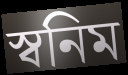
স্বনিম